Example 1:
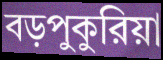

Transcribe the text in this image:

বড়পুকুরিয়া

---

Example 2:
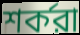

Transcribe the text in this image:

শর্করা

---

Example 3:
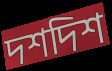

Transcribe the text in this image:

দশদিশ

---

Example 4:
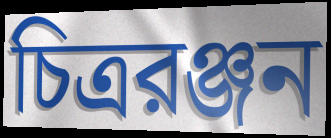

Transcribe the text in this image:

চিত্ররঞ্জন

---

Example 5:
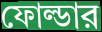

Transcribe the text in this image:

ফোল্ডার